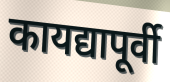
कायद्यापूर्वी